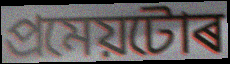
প্ৰমেয়টোৰ